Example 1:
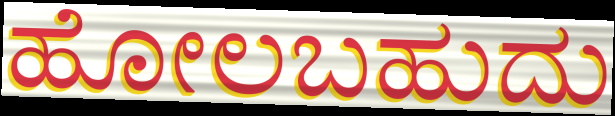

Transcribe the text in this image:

ಹೋಲಬಹುದು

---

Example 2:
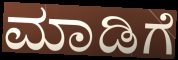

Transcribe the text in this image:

ಮಾಡಿಗೆ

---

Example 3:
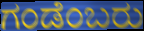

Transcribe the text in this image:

ಗಂಡೆಂಬರು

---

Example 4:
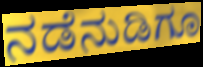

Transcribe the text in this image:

ನಡೆನುಡಿಗೂ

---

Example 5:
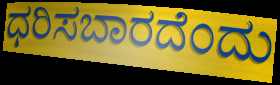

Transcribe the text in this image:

ಧರಿಸಬಾರದೆಂದು